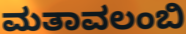
ಮತಾವಲಂಬಿ